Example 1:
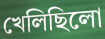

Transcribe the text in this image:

খেলিছিলো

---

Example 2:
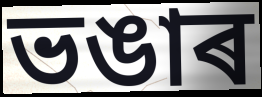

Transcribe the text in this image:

ভঙাৰ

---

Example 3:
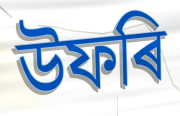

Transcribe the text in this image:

উফৰি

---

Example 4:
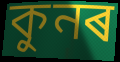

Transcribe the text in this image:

কুনৰ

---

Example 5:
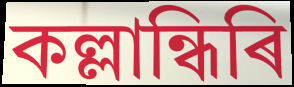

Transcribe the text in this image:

কল্লান্ধিৰি